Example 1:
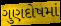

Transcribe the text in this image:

ગુણદોષમાં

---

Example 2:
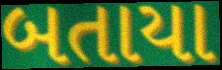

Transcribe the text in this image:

બતાયા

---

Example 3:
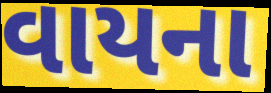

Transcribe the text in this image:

વાયના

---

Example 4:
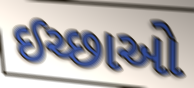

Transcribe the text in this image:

ઈચ્છાઓ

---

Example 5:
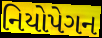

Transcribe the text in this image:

નિયોપેગન